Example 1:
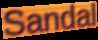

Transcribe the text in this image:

Sandal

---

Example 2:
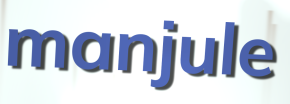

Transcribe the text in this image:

manjule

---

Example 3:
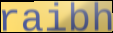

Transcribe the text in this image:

raibh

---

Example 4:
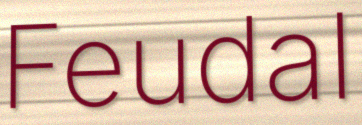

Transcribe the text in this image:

Feudal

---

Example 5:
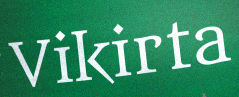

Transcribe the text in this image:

Vikirta